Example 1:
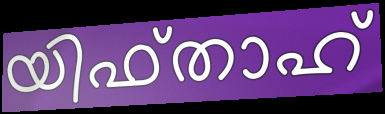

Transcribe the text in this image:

യിഫ്താഹ്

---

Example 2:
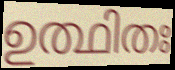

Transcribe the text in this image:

ഉത്ഥിതഃ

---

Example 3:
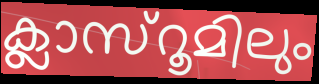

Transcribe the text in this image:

ക്ലാസ്റൂമിലും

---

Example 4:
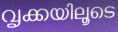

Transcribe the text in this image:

വൃക്കയിലൂടെ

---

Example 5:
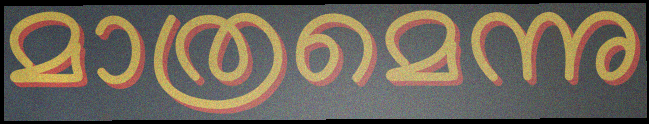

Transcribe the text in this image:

മാത്രമെന്നു